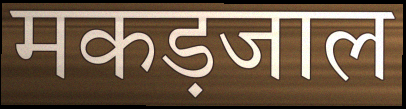
मकड़जाल